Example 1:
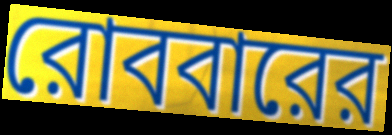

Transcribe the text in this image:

রোববারের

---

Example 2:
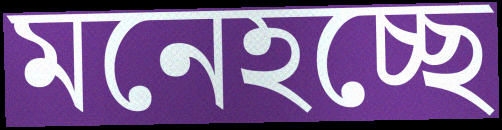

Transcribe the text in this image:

মনেহচ্ছে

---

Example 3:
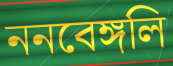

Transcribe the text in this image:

ননবেঙ্গলি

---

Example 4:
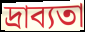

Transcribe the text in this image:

দ্রাব্যতা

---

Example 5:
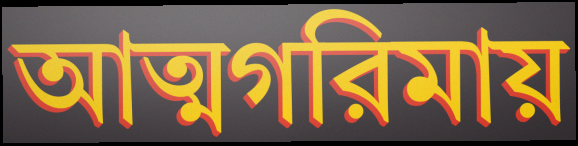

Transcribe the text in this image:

আত্মগরিমায়